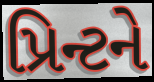
પ્રિન્ટને